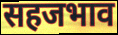
सहजभाव